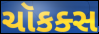
ચૉકક્સ